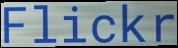
Flickr